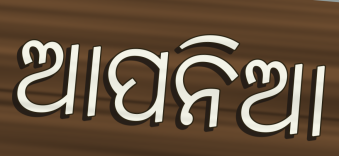
ଆପନିଆ